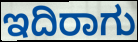
ಇದಿರಾಗು